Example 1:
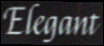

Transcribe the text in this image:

Elegant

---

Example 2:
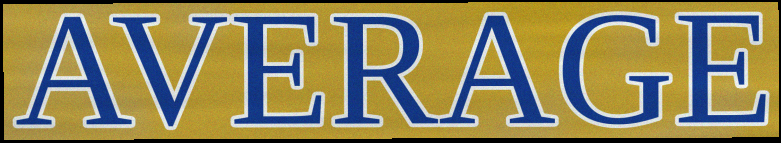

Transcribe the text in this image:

AVERAGE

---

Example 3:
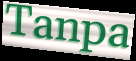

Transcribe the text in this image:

Tanpa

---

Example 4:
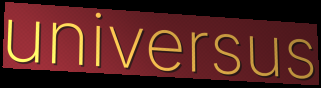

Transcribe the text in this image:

universus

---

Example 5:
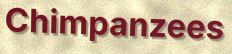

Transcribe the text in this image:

Chimpanzees